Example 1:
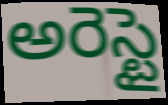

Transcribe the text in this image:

అరెస్టై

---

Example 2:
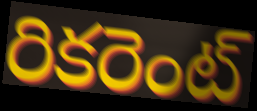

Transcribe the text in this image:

రికరెంట్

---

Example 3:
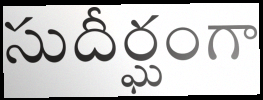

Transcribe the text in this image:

సుదీర్ఘంగా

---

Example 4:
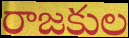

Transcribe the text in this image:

రాజకుల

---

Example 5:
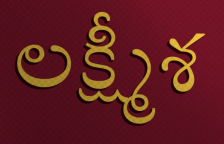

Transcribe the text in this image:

లక్ష్మీశ